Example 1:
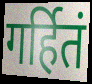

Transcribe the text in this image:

गर्हितं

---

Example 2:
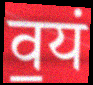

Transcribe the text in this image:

व॒यं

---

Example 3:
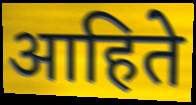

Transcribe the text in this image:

आहिते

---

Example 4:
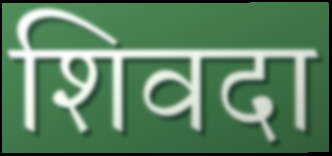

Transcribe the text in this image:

शिवदा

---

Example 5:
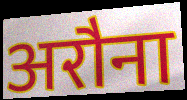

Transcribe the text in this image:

अरौना